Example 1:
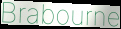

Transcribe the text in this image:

Brabourne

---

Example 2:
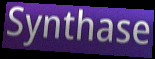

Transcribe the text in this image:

Synthase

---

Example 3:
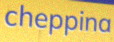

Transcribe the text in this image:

cheppina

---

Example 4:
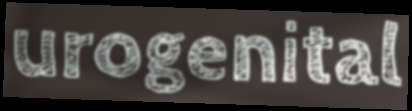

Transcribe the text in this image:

urogenital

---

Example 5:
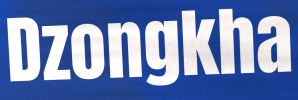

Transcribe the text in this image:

Dzongkha